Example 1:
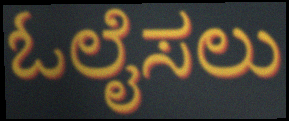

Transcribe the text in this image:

ಓಲೈಸಲು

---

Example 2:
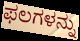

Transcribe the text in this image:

ಫಲಗಳನ್ನು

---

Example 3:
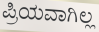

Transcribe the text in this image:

ಪ್ರಿಯವಾಗಿಲ್ಲ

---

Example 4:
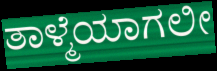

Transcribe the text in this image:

ತಾಳ್ಮೆಯಾಗಲೀ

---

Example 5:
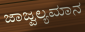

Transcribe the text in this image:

ಜಾಜ್ವಲ್ಯಮಾನ